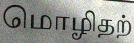
மொழிதற்